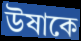
উষাকে